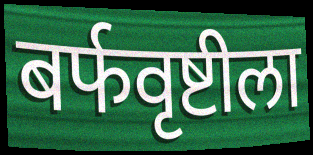
बर्फवृष्टीला